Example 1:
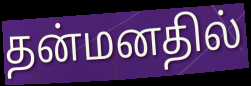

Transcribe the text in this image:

தன்மனதில்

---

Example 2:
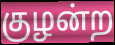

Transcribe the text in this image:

குழன்ற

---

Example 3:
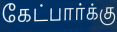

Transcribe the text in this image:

கேட்பார்க்கு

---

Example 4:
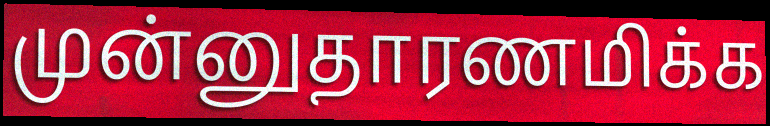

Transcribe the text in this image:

முன்னுதாரணமிக்க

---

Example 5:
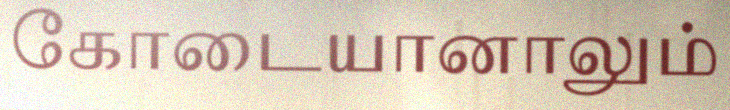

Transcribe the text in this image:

கோடையானாலும்